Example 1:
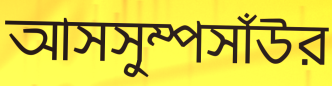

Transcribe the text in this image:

আসসুম্পসাঁউর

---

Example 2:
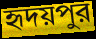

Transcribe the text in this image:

হৃদয়পুর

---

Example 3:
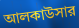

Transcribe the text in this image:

আলকাউসার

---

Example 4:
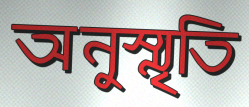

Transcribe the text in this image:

অনুস্মৃতি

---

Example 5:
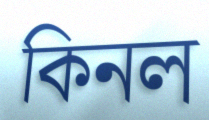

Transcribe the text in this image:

কিনল